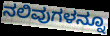
ನಲಿವುಗಳನ್ನೂ